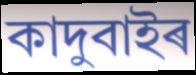
কাদুবাইৰ